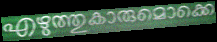
എഴുത്തുകാരുമൊക്കെ